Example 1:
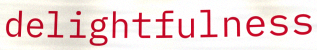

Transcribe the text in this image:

delightfulness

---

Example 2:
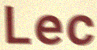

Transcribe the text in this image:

Lec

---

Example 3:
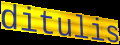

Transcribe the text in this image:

ditulis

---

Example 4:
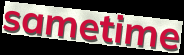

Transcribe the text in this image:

sametime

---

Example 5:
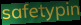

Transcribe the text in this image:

safetypin